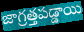
జాగ్రత్తపడ్డాయి